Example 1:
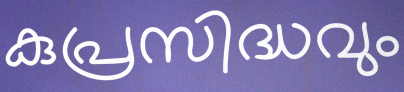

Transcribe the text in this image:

കുപ്രസിദ്ധവും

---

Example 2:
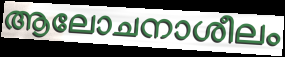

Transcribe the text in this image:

ആലോചനാശീലം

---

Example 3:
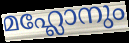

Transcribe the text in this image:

മഹ്ലോനും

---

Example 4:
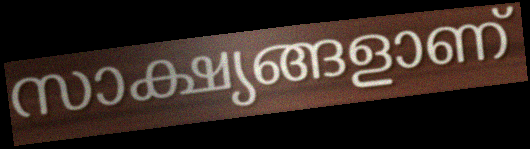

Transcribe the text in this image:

സാക്ഷ്യങ്ങളാണ്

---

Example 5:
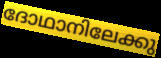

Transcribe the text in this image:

ദോഥാനിലേക്കു